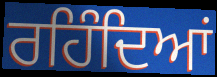
ਰਹਿੰਦਿਆਂ